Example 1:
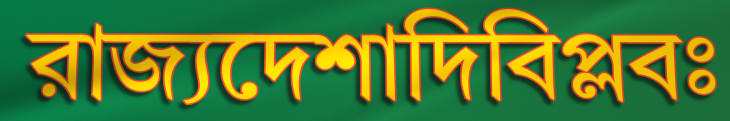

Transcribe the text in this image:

রাজ্যদেশাদিবিপ্লবঃ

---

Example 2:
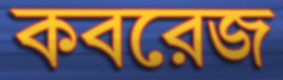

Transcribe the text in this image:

কবরেজ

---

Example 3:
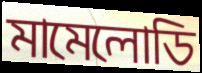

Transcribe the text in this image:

মামেলোডি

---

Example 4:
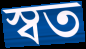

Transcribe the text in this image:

স্বত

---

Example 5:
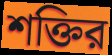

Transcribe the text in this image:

শক্তির